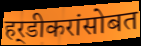
हर्डीकरांसोबत